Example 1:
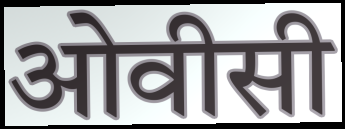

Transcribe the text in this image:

ओवीसी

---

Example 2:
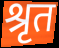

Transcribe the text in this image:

श्रृत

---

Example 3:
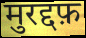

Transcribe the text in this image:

मुरद्दफ़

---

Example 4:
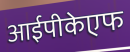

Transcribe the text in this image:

आईपीकेएफ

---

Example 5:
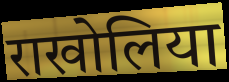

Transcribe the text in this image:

राखोलिया